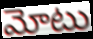
మోటు